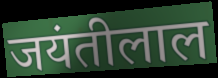
जयंतीलाल